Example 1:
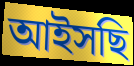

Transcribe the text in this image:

আইসছি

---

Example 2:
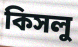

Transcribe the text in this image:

কিসলু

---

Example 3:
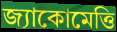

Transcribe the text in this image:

জ্যাকোমেত্তি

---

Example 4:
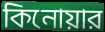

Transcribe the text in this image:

কিনোয়ার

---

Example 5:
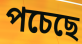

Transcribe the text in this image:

পচেছে